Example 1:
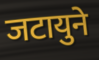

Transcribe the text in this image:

जटायुने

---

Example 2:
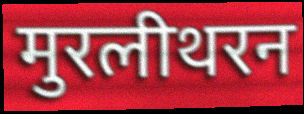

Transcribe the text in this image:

मुरलीथरन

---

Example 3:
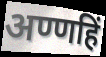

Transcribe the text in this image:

अण्णहिं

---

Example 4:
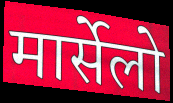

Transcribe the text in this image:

मार्सेलो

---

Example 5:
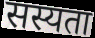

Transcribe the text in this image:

सस्यता